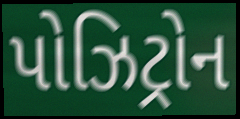
પોઝિટ્રોન